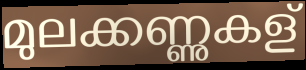
മുലക്കണ്ണുകള്